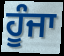
ਹੂੰਜਾ